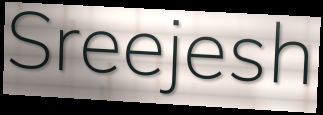
Sreejesh